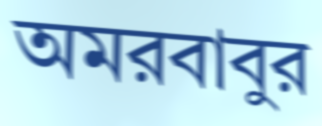
অমরবাবুর